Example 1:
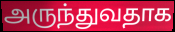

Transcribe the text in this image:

அருந்துவதாக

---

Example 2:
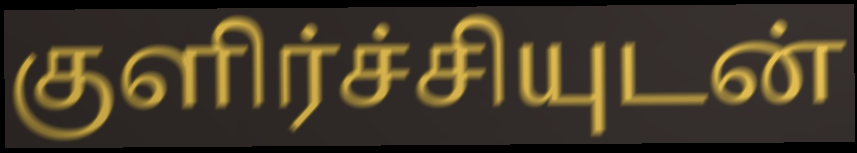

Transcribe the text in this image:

குளிர்ச்சியுடன்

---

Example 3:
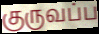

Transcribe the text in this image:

குருவப்ப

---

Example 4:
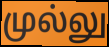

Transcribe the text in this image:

முல்லு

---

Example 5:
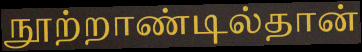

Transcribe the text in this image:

நூற்றாண்டில்தான்